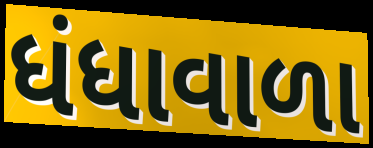
ધંધાવાળા